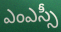
ఎంఎస్సీ